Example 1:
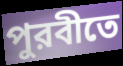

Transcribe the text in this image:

পুরবীতে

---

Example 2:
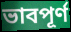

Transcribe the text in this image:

ভাবপূর্ণ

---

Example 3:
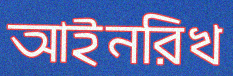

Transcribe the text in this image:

আইনরিখ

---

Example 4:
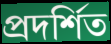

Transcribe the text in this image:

প্রদর্শিত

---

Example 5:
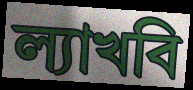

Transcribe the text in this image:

ল্যাখবি